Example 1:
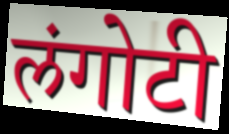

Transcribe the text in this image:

लंगोटी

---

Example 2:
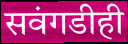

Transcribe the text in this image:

सवंगडीही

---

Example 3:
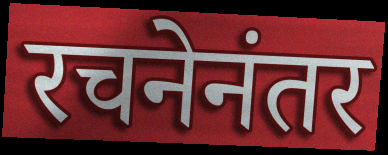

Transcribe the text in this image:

रचनेनंतर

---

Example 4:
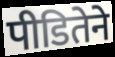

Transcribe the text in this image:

पीडितेने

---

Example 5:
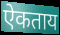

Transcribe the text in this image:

ऐकताय